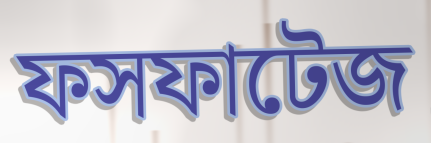
ফসফাটেজ